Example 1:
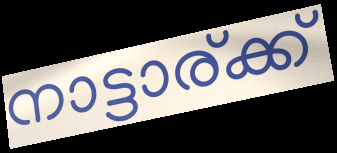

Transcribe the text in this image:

നാട്ടാര്ക്ക്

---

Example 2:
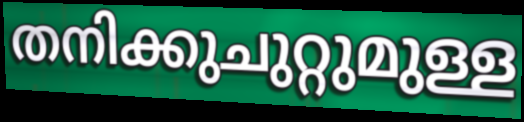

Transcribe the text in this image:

തനിക്കുചുറ്റുമുള്ള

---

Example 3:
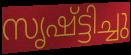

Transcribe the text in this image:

സൃഷ്ട്ടിച്ചു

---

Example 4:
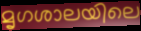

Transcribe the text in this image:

മൃഗശാലയിലെ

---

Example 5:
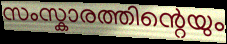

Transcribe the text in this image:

സംസ്കാരത്തിന്റെയും